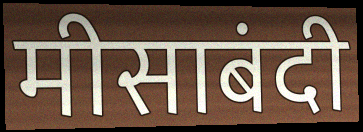
मीसाबंदी